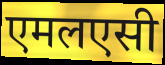
एमलएसी